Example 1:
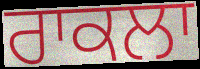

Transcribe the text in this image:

ਰਾਕਲਾ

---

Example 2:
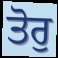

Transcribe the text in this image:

ਤੋਰੁ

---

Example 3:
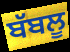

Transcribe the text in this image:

ਬੱਬਲੂ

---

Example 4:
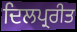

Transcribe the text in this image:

ਦਿਲਪ੍ਰਰੀਤ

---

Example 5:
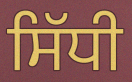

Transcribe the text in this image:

ਸਿੱਧੀ